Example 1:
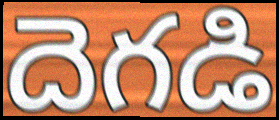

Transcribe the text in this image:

దెగడి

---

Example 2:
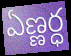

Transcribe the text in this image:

ఏణ్ణర్ధ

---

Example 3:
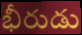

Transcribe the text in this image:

భీరుడు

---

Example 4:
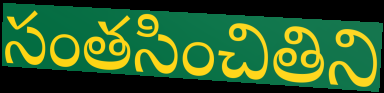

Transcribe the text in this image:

సంతసించితిని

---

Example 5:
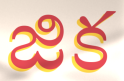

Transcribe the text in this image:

జిక